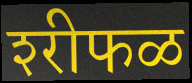
श्रीफळ